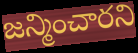
జన్మించారని